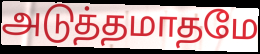
அடுத்தமாதமே